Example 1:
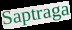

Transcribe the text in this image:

Saptraga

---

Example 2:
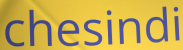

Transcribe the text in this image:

chesindi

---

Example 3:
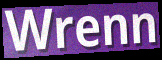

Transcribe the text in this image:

Wrenn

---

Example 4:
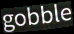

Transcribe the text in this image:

gobble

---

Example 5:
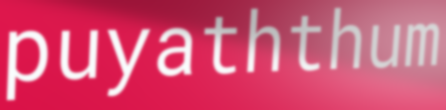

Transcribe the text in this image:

puyaththum